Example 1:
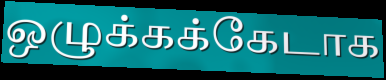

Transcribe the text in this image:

ஒழுக்கக்கேடாக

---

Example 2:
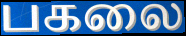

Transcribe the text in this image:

பகலை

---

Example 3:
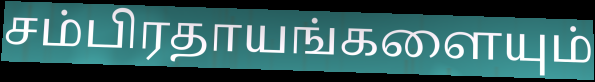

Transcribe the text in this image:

சம்பிரதாயங்களையும்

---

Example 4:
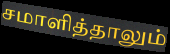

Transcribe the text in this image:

சமாளித்தாலும்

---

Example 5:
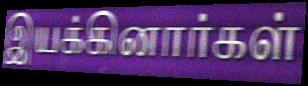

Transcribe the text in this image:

இயக்கினார்கள்